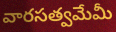
వారసత్వమేమీ